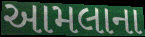
આમલાના